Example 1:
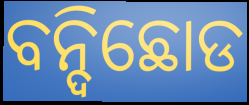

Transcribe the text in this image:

ବନ୍ଦିଛୋଡ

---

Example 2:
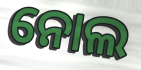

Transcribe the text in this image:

ନୋଲ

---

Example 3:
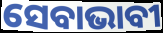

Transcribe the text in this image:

ସେବାଭାବୀ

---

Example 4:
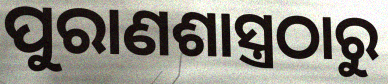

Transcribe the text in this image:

ପୁରାଣଶାସ୍ତ୍ରଠାରୁ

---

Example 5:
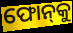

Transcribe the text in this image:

ଫୋନ୍‌କୁ